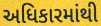
અધિકારમાંથી